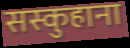
सस्कुहाना